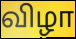
விழா